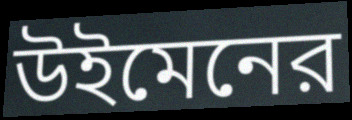
উইমেনের